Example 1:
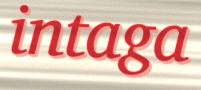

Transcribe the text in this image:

intaga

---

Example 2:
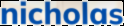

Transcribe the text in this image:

nicholas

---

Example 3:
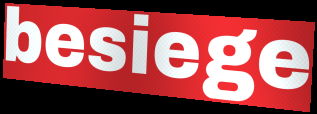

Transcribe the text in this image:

besiege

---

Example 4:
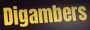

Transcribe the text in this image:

Digambers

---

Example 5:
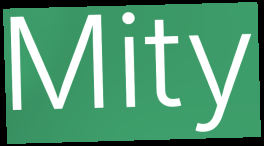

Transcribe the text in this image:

Mity